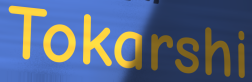
Tokarshi